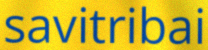
savitribai